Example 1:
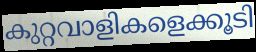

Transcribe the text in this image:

കുറ്റവാളികളെക്കൂടി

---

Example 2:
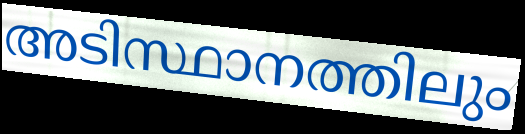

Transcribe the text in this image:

അടിസ്ഥാനത്തിലും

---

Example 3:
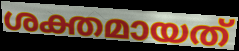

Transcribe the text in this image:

ശക്തമായത്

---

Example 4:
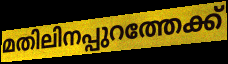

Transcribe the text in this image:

മതിലിനപ്പുറത്തേക്ക്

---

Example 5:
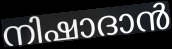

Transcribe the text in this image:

നിഷാദാൻ